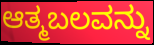
ಆತ್ಮಬಲವನ್ನು